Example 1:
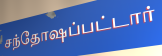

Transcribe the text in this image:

சந்தோஷப்பட்டார்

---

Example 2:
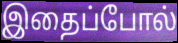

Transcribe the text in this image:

இதைப்போல்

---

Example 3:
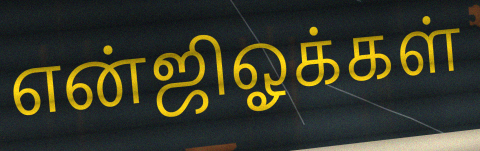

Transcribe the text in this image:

என்ஜிஓக்கள்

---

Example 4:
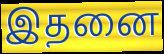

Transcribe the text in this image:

இதனை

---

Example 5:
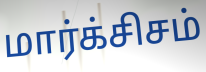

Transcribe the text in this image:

மார்க்சிசம்